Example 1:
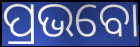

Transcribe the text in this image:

ପ୍ରଭବୋ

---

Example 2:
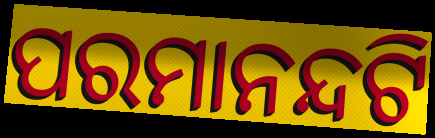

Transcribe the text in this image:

ପରମାନନ୍ଦଟି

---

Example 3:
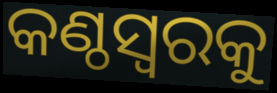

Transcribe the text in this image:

କଣ୍ଠସ୍ୱରକୁ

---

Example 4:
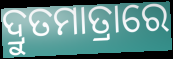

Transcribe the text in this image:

ଦ୍ରୁତମାତ୍ରାରେ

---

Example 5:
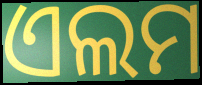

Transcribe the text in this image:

ଏଲମ